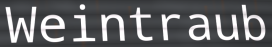
Weintraub